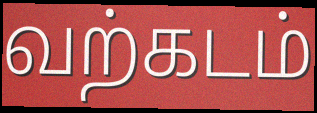
வற்கடம்